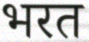
भरत